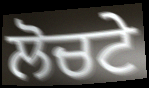
ਲੋਚਟੇ